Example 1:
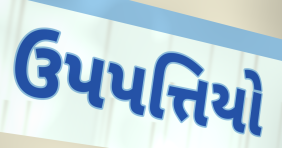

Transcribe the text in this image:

ઉપપત્તિયો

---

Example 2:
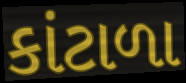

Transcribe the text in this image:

કાંટાળા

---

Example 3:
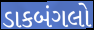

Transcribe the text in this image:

ડાકબંગલો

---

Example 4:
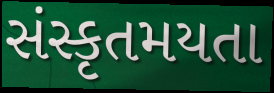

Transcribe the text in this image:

સંસ્કૃતમયતા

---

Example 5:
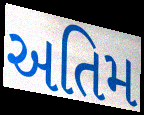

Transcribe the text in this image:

અતિમ